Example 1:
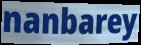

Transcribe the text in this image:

nanbarey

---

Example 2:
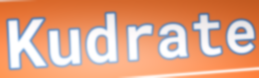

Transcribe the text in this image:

Kudrate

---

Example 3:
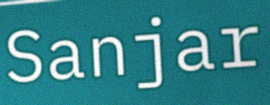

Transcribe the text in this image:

Sanjar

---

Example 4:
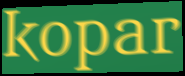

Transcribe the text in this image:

kopar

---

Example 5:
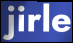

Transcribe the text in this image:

jirle